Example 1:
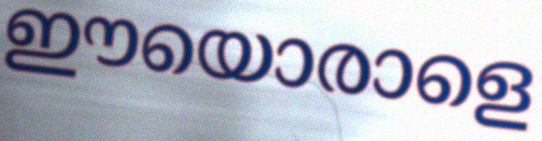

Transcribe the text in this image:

ഈയൊരാളെ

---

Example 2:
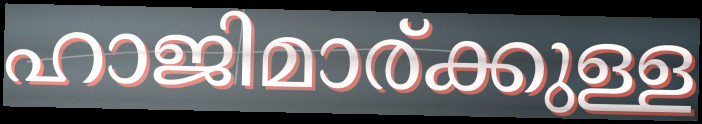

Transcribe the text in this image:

ഹാജിമാര്ക്കുള്ള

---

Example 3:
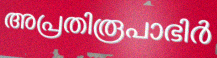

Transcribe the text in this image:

അപ്രതിരൂപാഭിർ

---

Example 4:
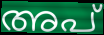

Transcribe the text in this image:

അപ്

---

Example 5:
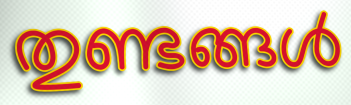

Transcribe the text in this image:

തുണ്ടങ്ങൾ